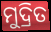
ମୁଦ୍ରିତ